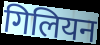
गिलियन